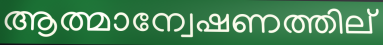
ആത്മാന്വേഷണത്തില്